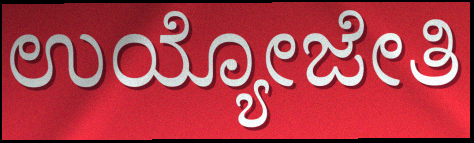
ಉಯ್ಯೋಜೇತಿ